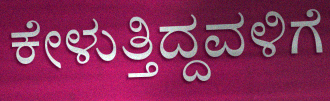
ಕೇಳುತ್ತಿದ್ದವಳಿಗೆ